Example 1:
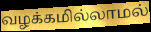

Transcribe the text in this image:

வழக்கமில்லாமல்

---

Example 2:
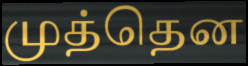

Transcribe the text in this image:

முத்தென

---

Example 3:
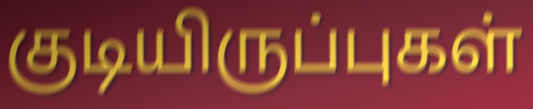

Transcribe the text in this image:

குடியிருப்புகள்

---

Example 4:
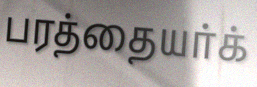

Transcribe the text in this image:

பரத்தையர்க்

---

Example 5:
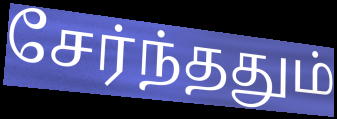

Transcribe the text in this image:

சேர்ந்ததும்